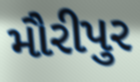
મૌરીપુર